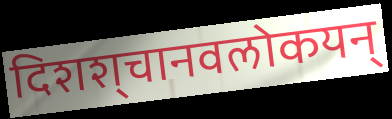
दिशश्चानवलोकयन्